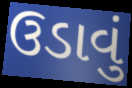
ઉડાવું